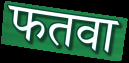
फतवा